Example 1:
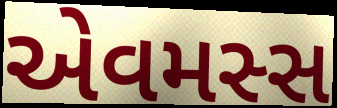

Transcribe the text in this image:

એવમસ્સ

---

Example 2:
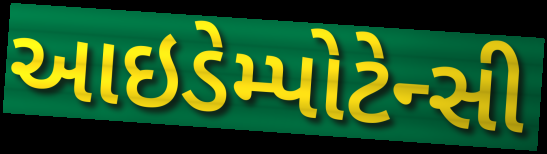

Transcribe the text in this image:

આઇડેમ્પોટેન્સી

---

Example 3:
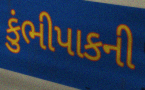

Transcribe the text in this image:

કુંભીપાકની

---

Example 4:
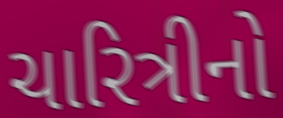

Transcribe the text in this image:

ચારિત્રીનો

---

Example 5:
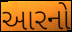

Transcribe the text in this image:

આરનો